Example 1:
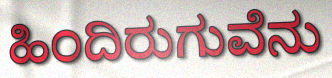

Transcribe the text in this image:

ಹಿಂದಿರುಗುವೆನು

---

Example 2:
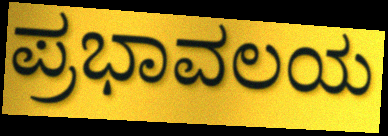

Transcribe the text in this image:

ಪ್ರಭಾವಲಯ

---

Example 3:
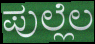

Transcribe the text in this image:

ಪುಲ್ಲೆಲ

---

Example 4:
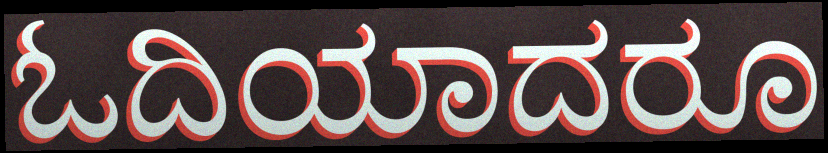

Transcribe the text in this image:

ಓದಿಯಾದರೂ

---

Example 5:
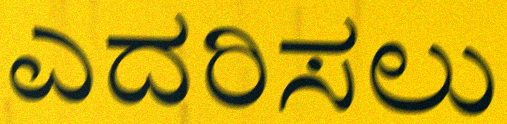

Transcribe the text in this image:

ಎದರಿಸಲು